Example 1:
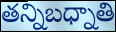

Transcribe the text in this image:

తన్నిబధ్నాతి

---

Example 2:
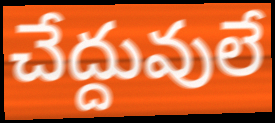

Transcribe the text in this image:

చేద్దువులే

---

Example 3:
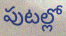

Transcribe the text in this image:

పుటల్లో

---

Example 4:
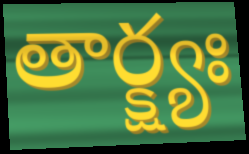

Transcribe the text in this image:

తార్క్ష్యః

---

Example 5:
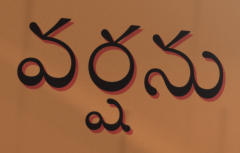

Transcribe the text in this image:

వర్షను